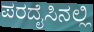
ಪರದೈಸಿನಲ್ಲಿ